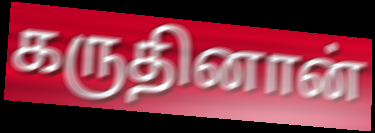
கருதினான்